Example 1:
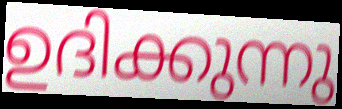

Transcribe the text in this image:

ഉദിക്കുന്നു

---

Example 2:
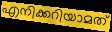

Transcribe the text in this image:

എനിക്കറിയാമത്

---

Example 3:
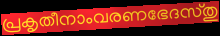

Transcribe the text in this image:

പ്രകൃതീനാംവരണഭേദസ്തു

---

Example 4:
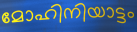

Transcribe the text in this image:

മോഹിനിയാട്ടം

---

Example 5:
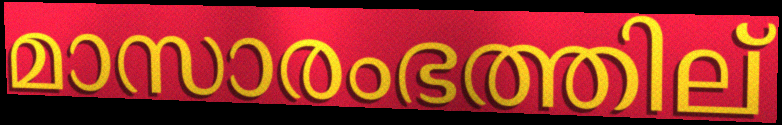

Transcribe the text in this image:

മാസാരംഭത്തില്